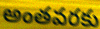
అంతవరకు